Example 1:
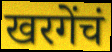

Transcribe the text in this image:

खरगेंचं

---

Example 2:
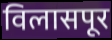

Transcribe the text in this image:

विलासपूर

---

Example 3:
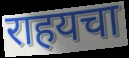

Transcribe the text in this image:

राहयचा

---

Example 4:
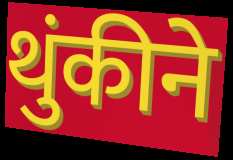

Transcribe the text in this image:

थुंकीने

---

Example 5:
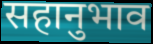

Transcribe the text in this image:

सहानुभाव